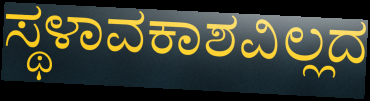
ಸ್ಥಳಾವಕಾಶವಿಲ್ಲದ